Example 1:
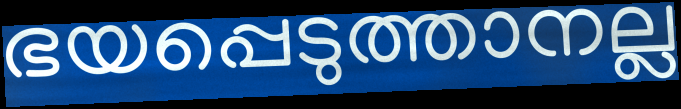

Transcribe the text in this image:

ഭയപ്പെടുത്താനല്ല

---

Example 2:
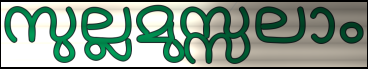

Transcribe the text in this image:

സുല്ലമുസ്സലാം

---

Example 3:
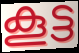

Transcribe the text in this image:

കൂട്ട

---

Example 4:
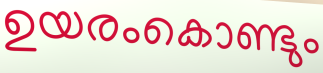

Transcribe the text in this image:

ഉയരംകൊണ്ടും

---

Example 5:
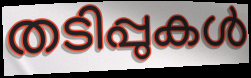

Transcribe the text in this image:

തടിപ്പുകൾ